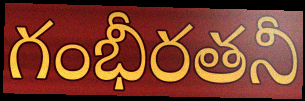
గంభీరతనీ